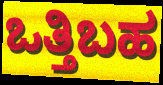
ಒತ್ತಿಬಹ